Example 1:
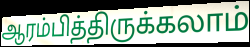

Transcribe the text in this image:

ஆரம்பித்திருக்கலாம்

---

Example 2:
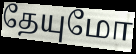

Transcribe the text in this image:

தேயுமோ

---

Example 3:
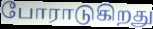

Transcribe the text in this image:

போராடுகிறது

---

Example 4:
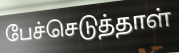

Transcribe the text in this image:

பேச்செடுத்தாள்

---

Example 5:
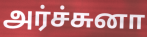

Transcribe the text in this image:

அர்ச்சுனா